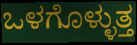
ಒಳಗೊಳ್ಳುತ್ತ